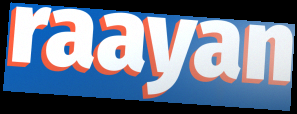
raayan